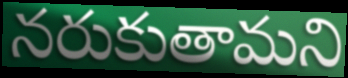
నరుకుతామని